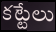
కట్టేలు